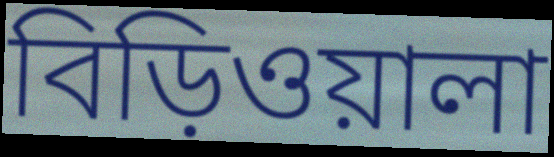
বিড়িওয়ালা